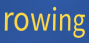
rowing